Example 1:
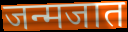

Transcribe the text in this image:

जन्मजात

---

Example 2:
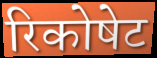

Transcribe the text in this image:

रिकोषेट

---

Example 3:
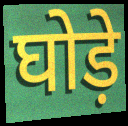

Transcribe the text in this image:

घोड़े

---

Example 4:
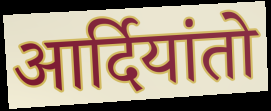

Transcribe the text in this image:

आर्दियांतो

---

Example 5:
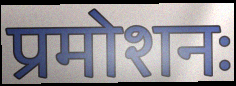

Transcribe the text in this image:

प्रमोशनः